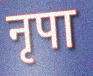
नृपा